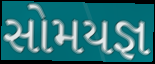
સોમયજ્ઞ